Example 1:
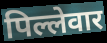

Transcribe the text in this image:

पिल्लेवार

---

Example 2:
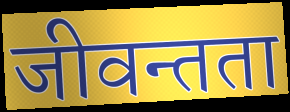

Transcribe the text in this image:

जीवन्तता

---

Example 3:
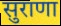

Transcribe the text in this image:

सुराणा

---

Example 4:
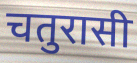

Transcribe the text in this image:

चतुरासी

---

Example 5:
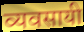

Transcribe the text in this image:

व्यवसायी